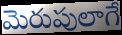
మెరుపులాగే